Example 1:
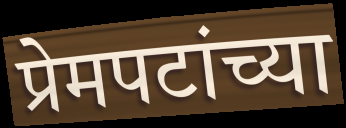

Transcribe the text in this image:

प्रेमपटांच्या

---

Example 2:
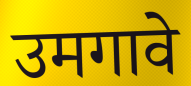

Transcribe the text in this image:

उमगावे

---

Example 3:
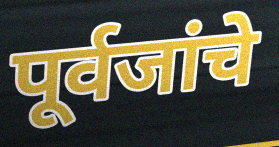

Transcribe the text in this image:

पूर्वजांचे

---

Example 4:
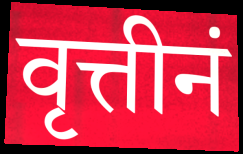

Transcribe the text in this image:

वृत्तीनं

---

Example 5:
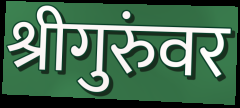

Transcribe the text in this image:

श्रीगुरुंवर